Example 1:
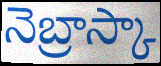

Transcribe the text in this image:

నెబ్రాస్కా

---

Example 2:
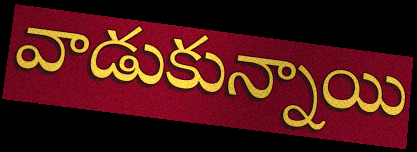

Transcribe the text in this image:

వాడుకున్నాయి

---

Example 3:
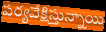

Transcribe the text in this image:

పర్యవేక్షిస్తున్నాయి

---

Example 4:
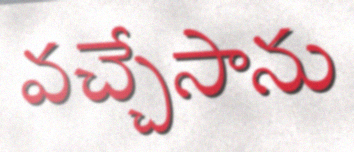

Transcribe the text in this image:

వచ్చేసాను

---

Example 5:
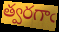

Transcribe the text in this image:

త్వరగాఁ